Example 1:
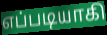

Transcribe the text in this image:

எப்படியாகி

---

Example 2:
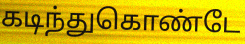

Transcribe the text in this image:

கடிந்துகொண்டே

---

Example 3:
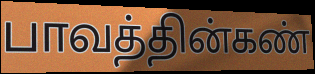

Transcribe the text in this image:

பாவத்தின்கண்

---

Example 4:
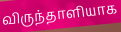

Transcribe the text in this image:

விருந்தாளியாக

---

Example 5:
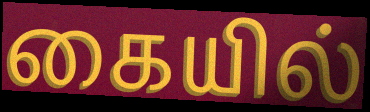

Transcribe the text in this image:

கையில்